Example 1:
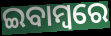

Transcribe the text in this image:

ଇବାମ୍ବରେ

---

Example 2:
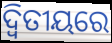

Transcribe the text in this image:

ଦ୍ୱିତୀୟରେ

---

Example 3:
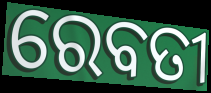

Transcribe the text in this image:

ରେବତୀ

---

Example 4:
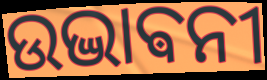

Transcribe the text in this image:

ଉଦ୍ଭାଵନୀ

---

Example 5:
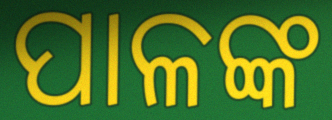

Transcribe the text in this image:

ପାଳଙ୍କ